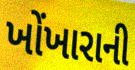
ખોંખારાની